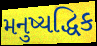
મનુષ્યદ્ધિક